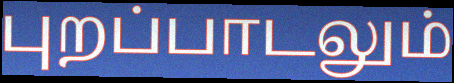
புறப்பாடலும்